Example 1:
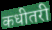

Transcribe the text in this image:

कधीतरी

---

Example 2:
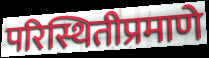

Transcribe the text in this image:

परिस्थितीप्रमाणे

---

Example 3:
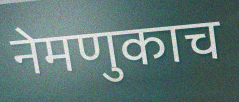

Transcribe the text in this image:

नेमणुकाच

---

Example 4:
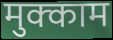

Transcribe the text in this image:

मुक्‍काम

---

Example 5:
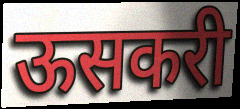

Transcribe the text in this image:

ऊसकरी